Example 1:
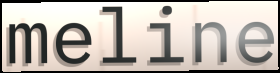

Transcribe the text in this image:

meline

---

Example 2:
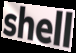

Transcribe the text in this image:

shell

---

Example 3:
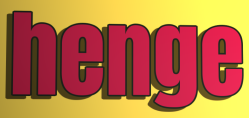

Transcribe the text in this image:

henge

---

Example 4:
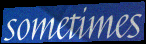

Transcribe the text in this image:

sometimes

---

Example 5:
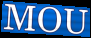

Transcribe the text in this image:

MOU